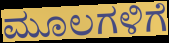
ಮೂಲಗಳಿಗೆ